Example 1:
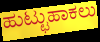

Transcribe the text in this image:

ಹುಟ್ಟುಹಾಕಲು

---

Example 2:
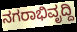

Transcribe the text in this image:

ನಗರಾಭಿವೃದ್ದಿ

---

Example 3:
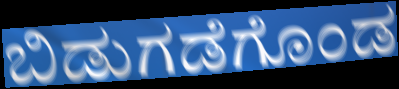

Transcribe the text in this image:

ಬಿಡುಗಡೆಗೊಂಡ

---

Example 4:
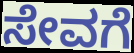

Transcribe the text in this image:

ಸೇವಗೆ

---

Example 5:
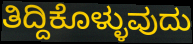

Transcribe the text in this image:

ತಿದ್ದಿಕೊಳ್ಳುವುದು